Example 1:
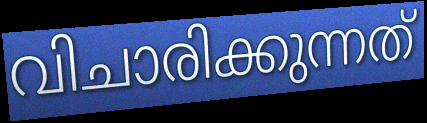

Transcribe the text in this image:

വിചാരിക്കുന്നത്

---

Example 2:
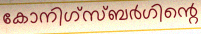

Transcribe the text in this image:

കോനിഗ്സ്ബർഗിന്റെ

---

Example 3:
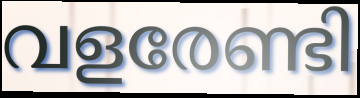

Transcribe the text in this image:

വളരേണ്ടി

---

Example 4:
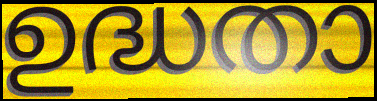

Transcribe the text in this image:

ഉദ്ധതാ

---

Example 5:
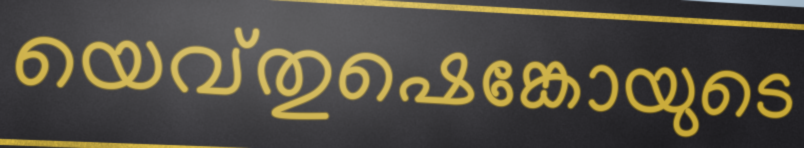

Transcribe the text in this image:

യെവ്തുഷെങ്കോയുടെ